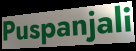
Puspanjali